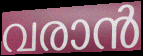
വരാൻ